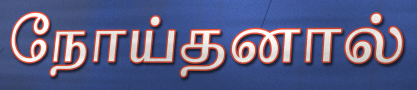
நோய்தனால்